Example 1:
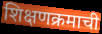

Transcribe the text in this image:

शिक्षणक्रमाची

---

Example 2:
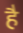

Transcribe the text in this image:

है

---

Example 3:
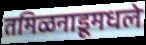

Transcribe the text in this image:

तमिळनाडूमधले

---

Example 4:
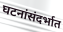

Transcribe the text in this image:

घटनांसंदर्भात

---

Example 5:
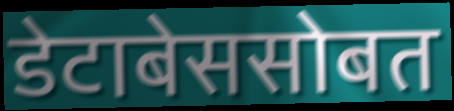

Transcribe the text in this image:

डेटाबेससोबत